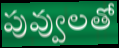
పువ్వులతో